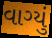
વાગ્યું